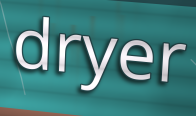
dryer